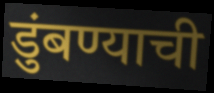
डुंबण्याची